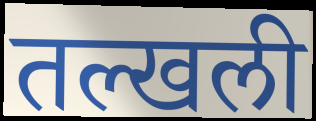
तल्खली